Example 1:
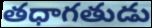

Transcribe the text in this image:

తధాగతుడు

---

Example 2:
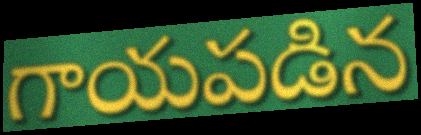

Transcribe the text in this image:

గాయపడిన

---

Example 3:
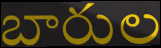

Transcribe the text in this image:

బారుల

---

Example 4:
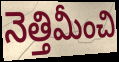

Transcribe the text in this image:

నెత్తిమీంచి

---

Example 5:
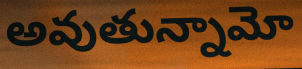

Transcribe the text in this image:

అవుతున్నామో